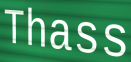
Thass